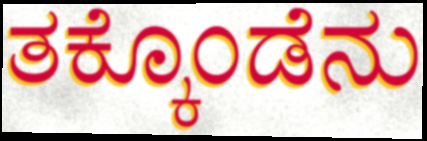
ತಕ್ಕೊಂಡೆನು